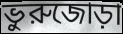
ভুরুজোড়া